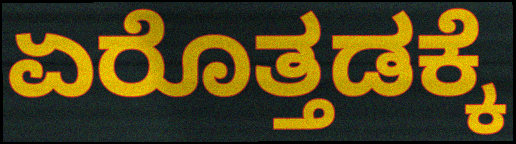
ಏರೊತ್ತಡಕ್ಕೆ